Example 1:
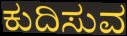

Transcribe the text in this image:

ಕುದಿಸುವ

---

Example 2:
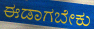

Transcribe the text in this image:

ಈಡಾಗಬೇಕು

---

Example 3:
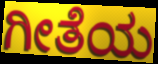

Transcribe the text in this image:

ಗೀತೆಯ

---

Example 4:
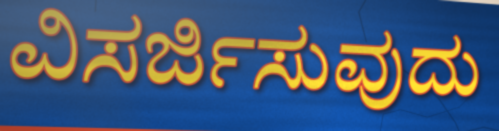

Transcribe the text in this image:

ವಿಸರ್ಜಿಸುವುದು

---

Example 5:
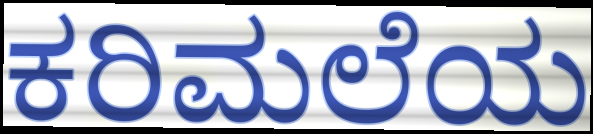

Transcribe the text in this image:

ಕರಿಮಲೆಯ